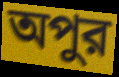
অপুর